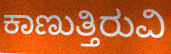
ಕಾಣುತ್ತಿರುವಿ